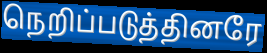
நெறிப்படுத்தினரே